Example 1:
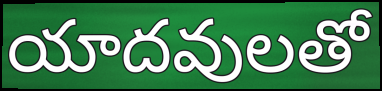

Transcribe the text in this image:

యాదవులతో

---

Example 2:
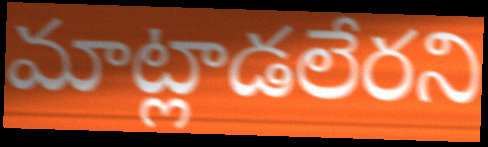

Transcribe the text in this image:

మాట్లాడలేరని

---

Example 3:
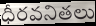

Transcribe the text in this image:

ధీరవనితలు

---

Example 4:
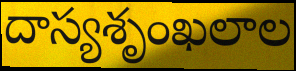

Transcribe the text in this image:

దాస్యశృంఖలాల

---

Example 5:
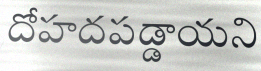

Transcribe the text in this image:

దోహదపడ్డాయని